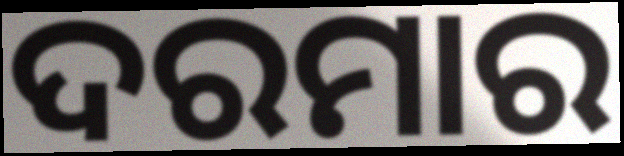
ଦରମାର